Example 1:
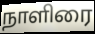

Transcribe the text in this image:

நாளிரை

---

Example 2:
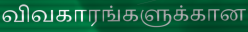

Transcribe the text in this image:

விவகாரங்களுக்கான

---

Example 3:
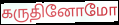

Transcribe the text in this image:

கருதினோமோ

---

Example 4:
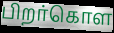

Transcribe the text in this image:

பிறர்கொள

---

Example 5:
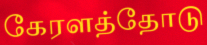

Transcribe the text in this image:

கேரளத்தோடு